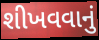
શીખવવાનું